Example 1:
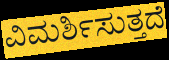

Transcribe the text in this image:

ವಿಮರ್ಶಿಸುತ್ತದೆ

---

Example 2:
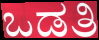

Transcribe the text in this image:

ಒಡತಿ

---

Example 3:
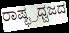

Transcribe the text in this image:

ರಾಷ್ಟ್ರಧ್ವಜದ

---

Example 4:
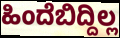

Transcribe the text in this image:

ಹಿಂದೆಬಿದ್ದಿಲ್ಲ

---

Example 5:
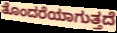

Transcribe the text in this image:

ತೊಂದರೆಯಾಗುತ್ತದೆ